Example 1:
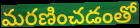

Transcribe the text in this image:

మరణించడంతో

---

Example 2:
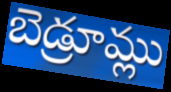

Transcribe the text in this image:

బెడ్రూమ్లు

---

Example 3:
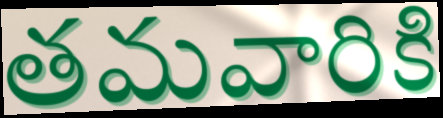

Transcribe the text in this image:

తమవారికి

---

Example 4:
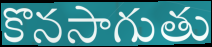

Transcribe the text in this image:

కొనసాగుతు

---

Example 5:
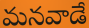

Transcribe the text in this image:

మనవాడే